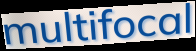
multifocal